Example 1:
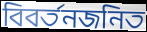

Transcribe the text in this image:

বিবর্তনজনিত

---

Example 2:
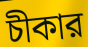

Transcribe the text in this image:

চীকার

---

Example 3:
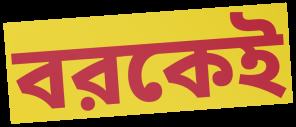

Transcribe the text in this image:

বরকেই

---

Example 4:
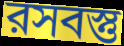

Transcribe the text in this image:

রসবস্তু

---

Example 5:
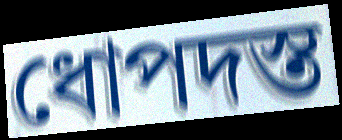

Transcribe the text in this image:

ধোপদস্ত